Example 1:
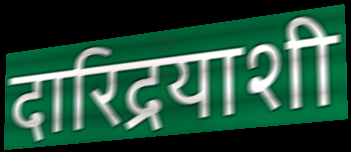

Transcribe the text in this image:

दारिद्रयाशी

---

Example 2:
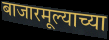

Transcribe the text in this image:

बाजारमूल्याच्या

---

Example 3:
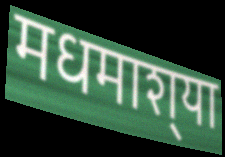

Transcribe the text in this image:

मधमाश्या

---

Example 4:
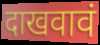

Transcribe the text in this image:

दाखवावं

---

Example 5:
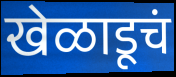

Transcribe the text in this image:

खेळाडूचं